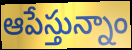
ఆపేస్తున్నాం